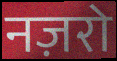
नज़रो